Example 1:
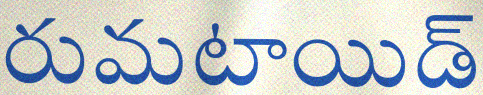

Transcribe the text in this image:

రుమటాయిడ్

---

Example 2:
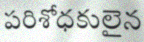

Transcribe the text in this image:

పరిశోధకులైన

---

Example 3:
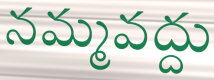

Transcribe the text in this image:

నమ్మవద్దు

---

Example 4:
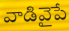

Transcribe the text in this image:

వాడివైపే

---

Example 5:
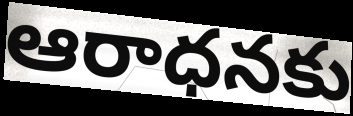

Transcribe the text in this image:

ఆరాధనకు